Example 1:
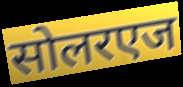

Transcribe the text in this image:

सोलरएज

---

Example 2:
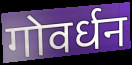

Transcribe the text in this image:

गोवर्धन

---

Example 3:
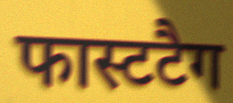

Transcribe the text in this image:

फास्टटैग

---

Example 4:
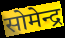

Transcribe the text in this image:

सोमेन्द्र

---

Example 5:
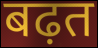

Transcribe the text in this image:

बढ़त